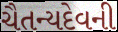
ચૈતન્યદેવની